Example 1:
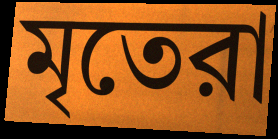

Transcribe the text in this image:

মৃতেরা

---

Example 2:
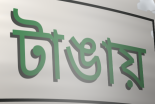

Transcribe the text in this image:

টাঙায়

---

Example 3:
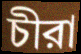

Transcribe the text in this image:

চীরা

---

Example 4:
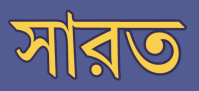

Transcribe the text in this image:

সারত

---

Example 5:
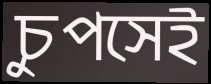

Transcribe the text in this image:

চুপসেই